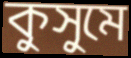
কুসুমে